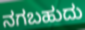
ನಗಬಹುದು